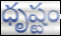
ధృష్టం